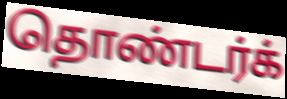
தொண்டர்க்